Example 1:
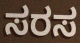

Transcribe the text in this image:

ಸರಸ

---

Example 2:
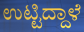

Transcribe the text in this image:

ಉಟ್ಟಿದ್ದಾಳೆ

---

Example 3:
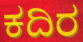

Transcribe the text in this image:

ಕದಿರ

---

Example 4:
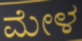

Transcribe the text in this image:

ಮೇಳ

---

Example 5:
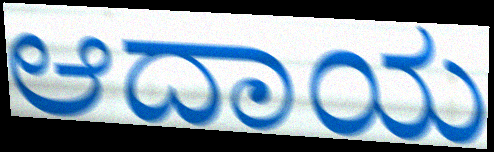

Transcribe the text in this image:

ಆದಾಯ